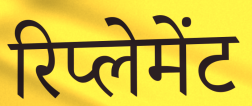
रिप्लेमेंट